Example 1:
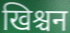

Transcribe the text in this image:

खिश्चन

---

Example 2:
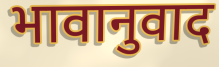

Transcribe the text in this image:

भावानुवाद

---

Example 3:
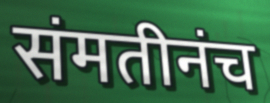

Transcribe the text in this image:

संमतीनंच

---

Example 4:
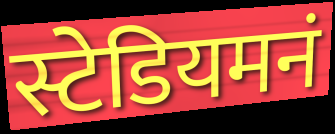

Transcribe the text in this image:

स्टेडियमनं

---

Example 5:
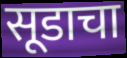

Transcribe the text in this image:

सूडाचा